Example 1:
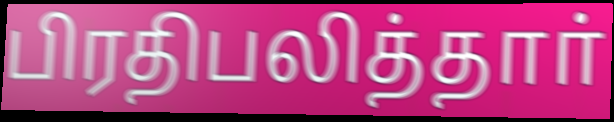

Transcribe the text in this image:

பிரதிபலித்தார்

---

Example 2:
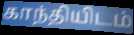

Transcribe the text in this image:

காந்தியிடம்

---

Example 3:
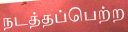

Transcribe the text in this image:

நடத்தப்பெற்ற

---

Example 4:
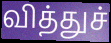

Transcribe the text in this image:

வித்துச்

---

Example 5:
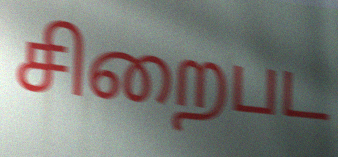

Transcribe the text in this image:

சிறைபட